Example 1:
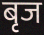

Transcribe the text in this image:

बृज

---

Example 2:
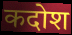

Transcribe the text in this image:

कदोश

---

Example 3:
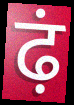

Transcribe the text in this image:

ढ़ं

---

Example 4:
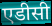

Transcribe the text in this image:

एडीसी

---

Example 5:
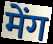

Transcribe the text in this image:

मेंग